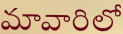
మావారిలో